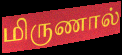
மிருணால்